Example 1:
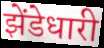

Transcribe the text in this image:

झेंडेधारी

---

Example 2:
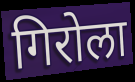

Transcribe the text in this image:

गिरोला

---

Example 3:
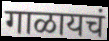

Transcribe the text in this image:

गाळायचं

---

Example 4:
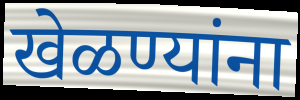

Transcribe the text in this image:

खेळण्यांना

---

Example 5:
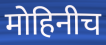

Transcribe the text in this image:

मोहिनीच